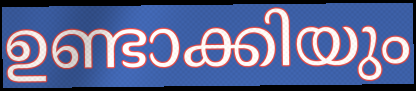
ഉണ്ടാക്കിയും